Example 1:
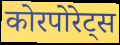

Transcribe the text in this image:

कोरपोरेट्स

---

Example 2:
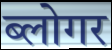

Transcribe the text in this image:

ब्लोगर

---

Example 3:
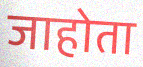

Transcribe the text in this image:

जाहोता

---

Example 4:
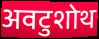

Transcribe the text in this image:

अवटुशोथ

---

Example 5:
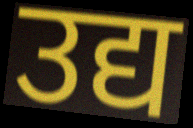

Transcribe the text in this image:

उद्य